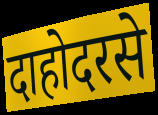
दाहोदरसे